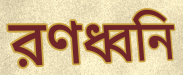
রণধ্বনি